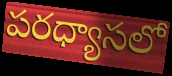
పరధ్యాసలో